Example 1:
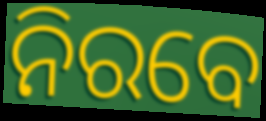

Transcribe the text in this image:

ନିରବେ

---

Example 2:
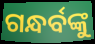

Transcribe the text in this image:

ଗନ୍ଧର୍ବଙ୍କୁ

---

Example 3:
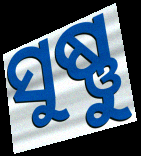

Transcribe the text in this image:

ସୁଷ୍ଣୁ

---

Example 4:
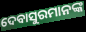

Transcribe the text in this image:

ଦେବାସୁରମାନଙ୍କ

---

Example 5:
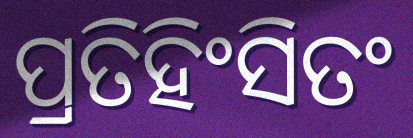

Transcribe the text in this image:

ପ୍ରତିହିଂସିତଂ